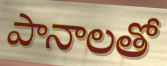
పానాలతో